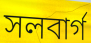
সলবার্গ